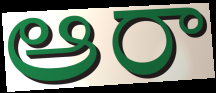
ఆరా